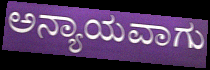
ಅನ್ಯಾಯವಾಗು